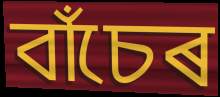
বাঁচেৰ